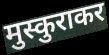
मुस्कुराकर